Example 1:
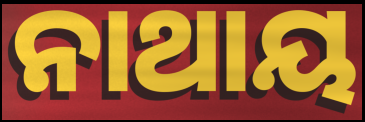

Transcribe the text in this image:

ନାଥାୟ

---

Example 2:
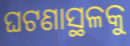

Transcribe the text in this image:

ଘଟଣାସ୍ଥଳକୁ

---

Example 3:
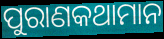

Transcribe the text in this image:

ପୁରାଣକଥାମାନ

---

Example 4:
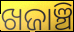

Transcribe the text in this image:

ଖଜାଞ୍ଚି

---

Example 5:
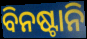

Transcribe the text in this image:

ବିନଷ୍ଟାନି